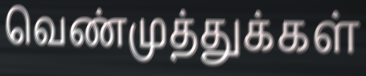
வெண்முத்துக்கள்